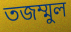
তজম্মুল